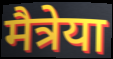
मैत्रेया